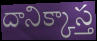
దానిక్కాస్త